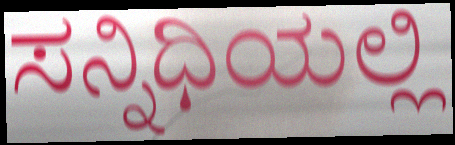
ಸನ್ನಿಧಿಯಲ್ಲಿ